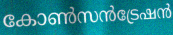
കോൺസൻട്രേഷൻ